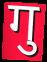
गु